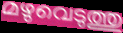
മഴുവെടുത്തു